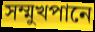
সম্মুখপানে